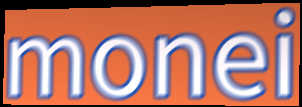
monei